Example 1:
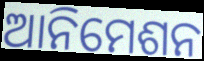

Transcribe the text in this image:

ଆନିମେଶନ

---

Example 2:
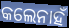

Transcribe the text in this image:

କଲେନାହଁ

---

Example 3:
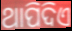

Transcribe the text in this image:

ଥାପିଦିଏ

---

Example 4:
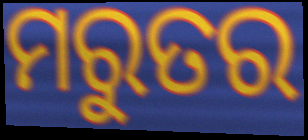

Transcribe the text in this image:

ମରୁତର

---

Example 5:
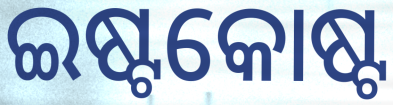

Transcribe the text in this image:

ଇଷ୍ଟକୋଷ୍ଟ